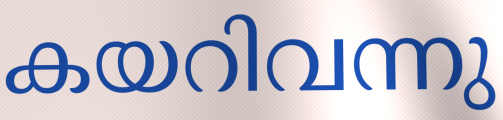
കയറിവന്നു